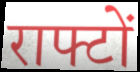
राफ्टों